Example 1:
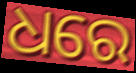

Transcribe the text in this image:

ଧରେ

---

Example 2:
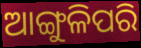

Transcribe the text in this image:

ଆଙ୍ଗୁଳିପରି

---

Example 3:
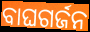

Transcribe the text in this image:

ବାଘଗର୍ଜନ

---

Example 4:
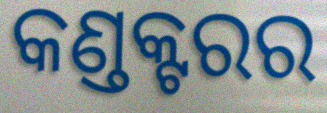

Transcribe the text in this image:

କଣ୍ଡକ୍ଟରର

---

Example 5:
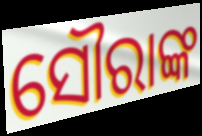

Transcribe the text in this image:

ସୌରାଙ୍କ